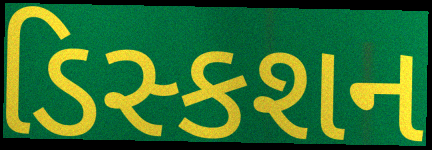
ડિસ્કશન